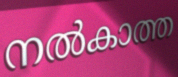
നൽകാത്ത